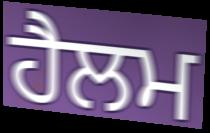
ਹੈਲਮ